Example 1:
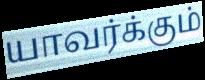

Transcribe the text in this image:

யாவர்க்கும்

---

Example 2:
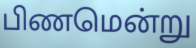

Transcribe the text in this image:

பிணமென்று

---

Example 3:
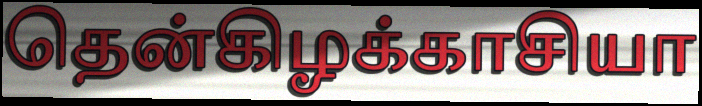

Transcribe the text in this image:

தென்கிழக்காசியா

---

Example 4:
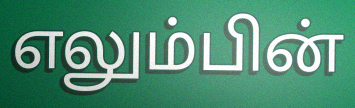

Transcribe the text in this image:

எலும்பின்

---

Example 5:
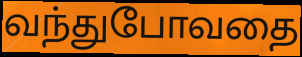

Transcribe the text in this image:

வந்துபோவதை